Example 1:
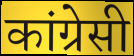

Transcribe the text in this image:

कांग्रेसी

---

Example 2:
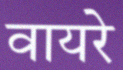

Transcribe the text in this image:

वायरे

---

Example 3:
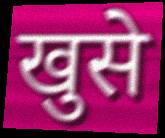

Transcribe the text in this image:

खुसे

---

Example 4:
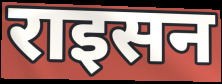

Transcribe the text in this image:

राइसन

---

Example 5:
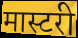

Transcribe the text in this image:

मास्टरी